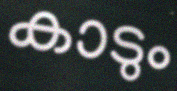
കാടും